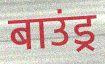
बाउंड्र